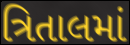
ત્રિતાલમાં